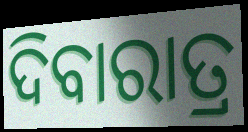
ଦିବାରାତ୍ର